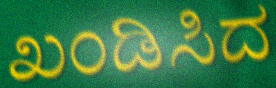
ಖಂಡಿಸಿದ